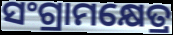
ସଂଗ୍ରାମକ୍ଷେତ୍ର